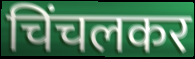
चिंचलकर